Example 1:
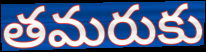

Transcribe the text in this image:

తమరుకు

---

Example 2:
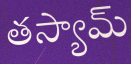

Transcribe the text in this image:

తస్యామ్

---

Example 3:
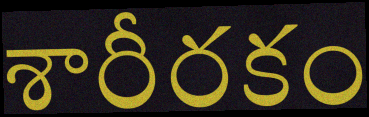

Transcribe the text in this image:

శారీరకం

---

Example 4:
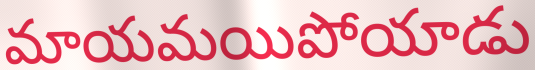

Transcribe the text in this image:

మాయమయిపోయాడు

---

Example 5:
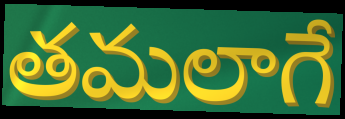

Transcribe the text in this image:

తమలాగే